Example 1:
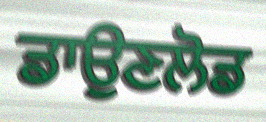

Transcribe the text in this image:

ਡਾਉਣਲੋਡ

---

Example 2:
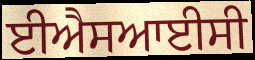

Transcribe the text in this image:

ਈਐਸਆਈਸੀ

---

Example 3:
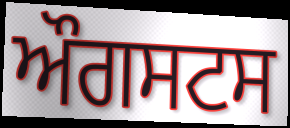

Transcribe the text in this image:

ਔਗਸਟਸ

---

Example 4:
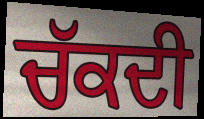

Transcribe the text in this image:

ਚੱਕਦੀ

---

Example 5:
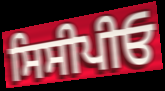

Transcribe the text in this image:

ਸਿਸੀਪੀਓ